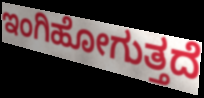
ಇಂಗಿಹೋಗುತ್ತದೆ